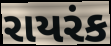
રાયરંક